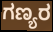
ಗಣ್ಯರ